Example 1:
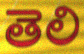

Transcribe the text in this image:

తెలి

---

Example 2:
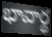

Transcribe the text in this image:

భావార్థ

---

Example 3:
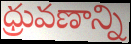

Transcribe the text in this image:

ధ్రువణాన్ని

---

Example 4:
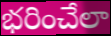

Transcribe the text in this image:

భరించేలా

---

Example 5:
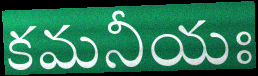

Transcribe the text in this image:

కమనీయః